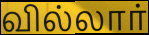
வில்லார்